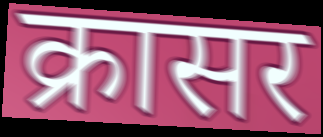
क्रासर